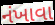
નંખાવા